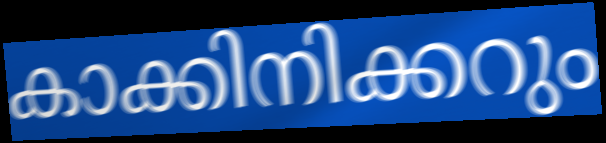
കാക്കിനിക്കറും